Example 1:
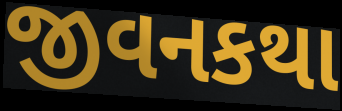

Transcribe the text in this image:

જીવનકથા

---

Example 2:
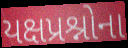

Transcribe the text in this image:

યક્ષપ્રશ્નોના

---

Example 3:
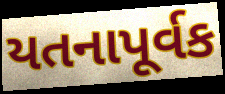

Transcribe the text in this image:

યતનાપૂર્વક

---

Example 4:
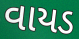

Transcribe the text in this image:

વાયડ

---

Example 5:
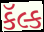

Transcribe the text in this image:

કૅલ્ક